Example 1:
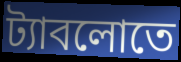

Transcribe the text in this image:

ট্যাবলোতে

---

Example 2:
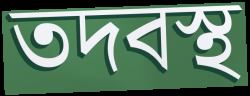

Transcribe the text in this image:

তদবস্থ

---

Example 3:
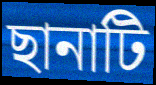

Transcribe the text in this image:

ছানাটি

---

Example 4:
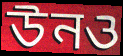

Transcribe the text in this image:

উনও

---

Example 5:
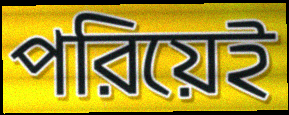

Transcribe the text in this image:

পরিয়েই